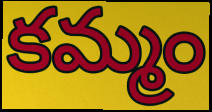
కమ్మం